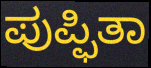
ಪುಪ್ಫಿತಾ